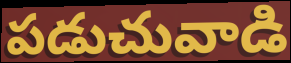
పడుచువాడి